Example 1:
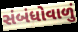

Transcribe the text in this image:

સંબંધોવાળું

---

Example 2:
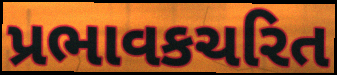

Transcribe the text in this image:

પ્રભાવકચરિત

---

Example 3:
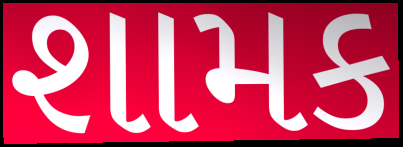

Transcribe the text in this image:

શામક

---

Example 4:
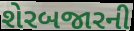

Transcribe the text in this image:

શેરબજારની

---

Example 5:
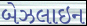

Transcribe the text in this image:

બેઝલાઇન